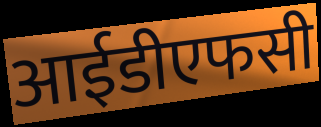
आईडीएफसी